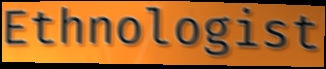
Ethnologist